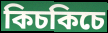
কিচকিচে